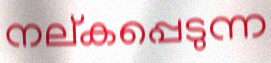
നല്കപ്പെടുന്ന